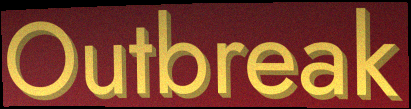
Outbreak